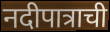
नदीपात्राची